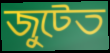
জুট্তে